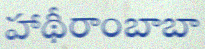
హాథీరాంబాబా